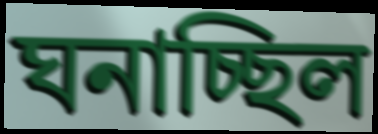
ঘনাচ্ছিল